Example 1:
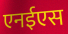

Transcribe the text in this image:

एनईएस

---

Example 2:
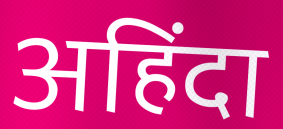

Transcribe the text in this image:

अहिंदा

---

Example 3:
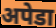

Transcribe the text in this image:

अपेडा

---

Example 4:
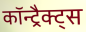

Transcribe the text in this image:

कॉन्ट्रैक्ट्स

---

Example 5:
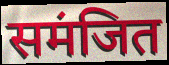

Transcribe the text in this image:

समंजित